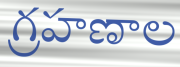
గ్రహణాల